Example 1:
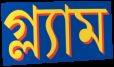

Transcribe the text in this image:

গ্ল্যাম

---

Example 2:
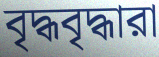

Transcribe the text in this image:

বৃদ্ধবৃদ্ধারা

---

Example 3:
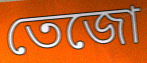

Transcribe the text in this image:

তেজো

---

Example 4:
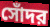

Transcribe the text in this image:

সোঁদর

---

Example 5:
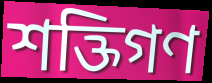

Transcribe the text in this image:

শক্তিগণ